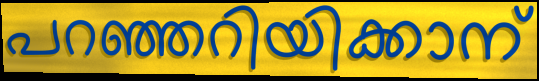
പറഞ്ഞറിയിക്കാന്